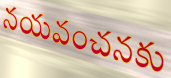
నయవంచనకు